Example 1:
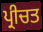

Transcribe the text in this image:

ਪ੍ਰੀਚਤ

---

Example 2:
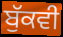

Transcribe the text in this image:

ਬੁੱਕਵੀ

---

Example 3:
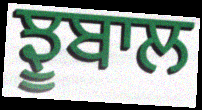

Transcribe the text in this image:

ਝੂਬਾਲ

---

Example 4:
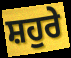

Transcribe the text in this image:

ਸ਼ਹੁਰੇ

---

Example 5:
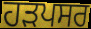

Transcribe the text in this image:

ਹੜਪਸਰ